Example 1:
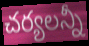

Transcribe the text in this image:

చర్యలన్నీ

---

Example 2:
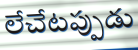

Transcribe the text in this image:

లేచేటప్పుడు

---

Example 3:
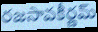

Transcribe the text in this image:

రజసావకీర్ణమ్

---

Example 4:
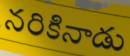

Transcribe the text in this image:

నరికినాడు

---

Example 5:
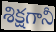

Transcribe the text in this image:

శిక్షగానీ